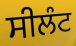
ਸੀਲੰਟ